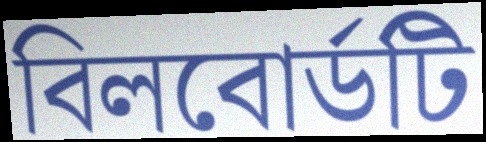
বিলবোর্ডটি